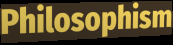
Philosophism